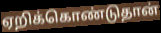
ஏறிக்கொண்டுதான்